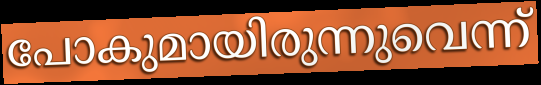
പോകുമായിരുന്നുവെന്ന്